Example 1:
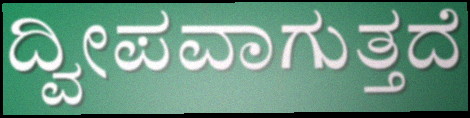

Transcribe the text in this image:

ದ್ವೀಪವಾಗುತ್ತದೆ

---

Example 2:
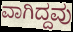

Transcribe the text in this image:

ವಾಗಿದ್ದವು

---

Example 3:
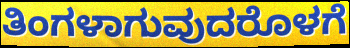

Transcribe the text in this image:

ತಿಂಗಳಾಗುವುದರೊಳಗೆ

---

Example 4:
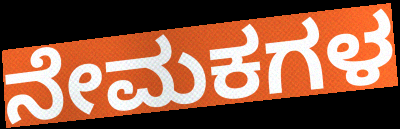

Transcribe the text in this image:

ನೇಮಕಗಳ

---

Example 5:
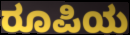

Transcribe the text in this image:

ರೂಪಿಯ